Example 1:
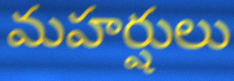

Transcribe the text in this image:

మహర్షులు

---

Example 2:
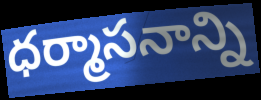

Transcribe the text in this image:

ధర్మాసనాన్ని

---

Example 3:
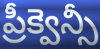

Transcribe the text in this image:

ప్రీక్వెన్సీ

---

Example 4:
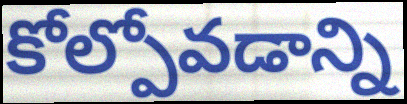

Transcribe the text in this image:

కోల్పోవడాన్ని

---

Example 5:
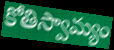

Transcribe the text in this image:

కోతిస్వామ్యం